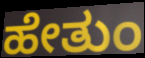
ಹೇತುಂ